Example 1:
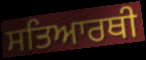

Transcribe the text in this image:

ਸਤਿਆਰਥੀ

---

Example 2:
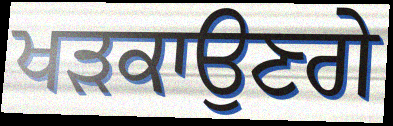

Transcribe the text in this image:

ਖੜਕਾਉਣਗੇ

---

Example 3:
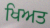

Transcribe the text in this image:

ਖਿਅਤ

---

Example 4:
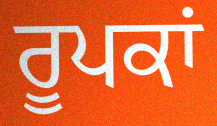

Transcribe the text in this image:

ਰੂਪਕਾਂ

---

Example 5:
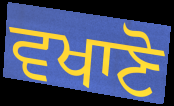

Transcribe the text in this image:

ਵਖਾਣੋ